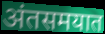
अंतसमयात